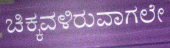
ಚಿಕ್ಕವಳಿರುವಾಗಲೇ